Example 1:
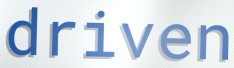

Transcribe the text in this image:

driven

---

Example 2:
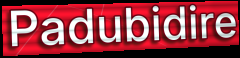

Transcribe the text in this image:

Padubidire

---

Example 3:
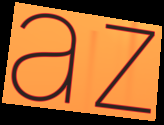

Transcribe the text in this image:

az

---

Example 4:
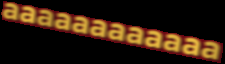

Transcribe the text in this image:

aaaaaaaaaaaa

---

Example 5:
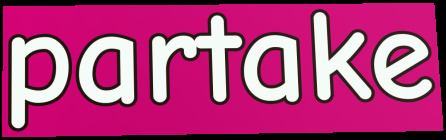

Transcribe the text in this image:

partake